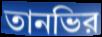
তানভির